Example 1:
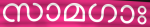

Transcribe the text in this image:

സാമഗാഃ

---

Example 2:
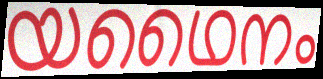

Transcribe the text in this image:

യഥൈനം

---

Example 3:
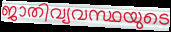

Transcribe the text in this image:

ജാതിവ്യവസ്ഥയുടെ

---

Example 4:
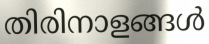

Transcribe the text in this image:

തിരിനാളങ്ങൾ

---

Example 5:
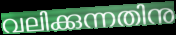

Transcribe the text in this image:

വലിക്കുന്നതിനു